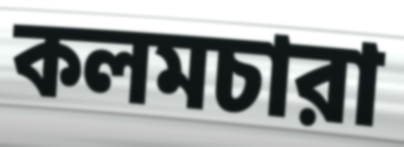
কলমচারা